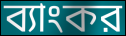
ব্যাংকর